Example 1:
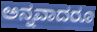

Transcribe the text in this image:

ಅನ್ನವಾದರೂ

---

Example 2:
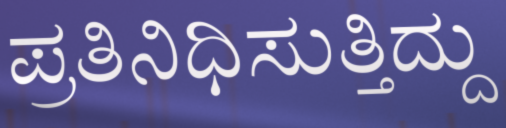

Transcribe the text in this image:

ಪ್ರತಿನಿಧಿಸುತ್ತಿದ್ದು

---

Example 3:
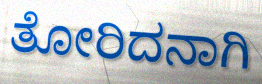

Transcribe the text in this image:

ತೋರಿದನಾಗಿ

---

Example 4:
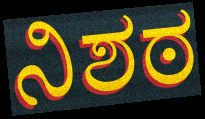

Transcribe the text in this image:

ನಿಶಠ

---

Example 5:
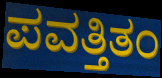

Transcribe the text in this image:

ಪವತ್ತಿತಂ